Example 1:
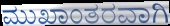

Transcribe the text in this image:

ಮುಖಾಂತರವಾಗಿ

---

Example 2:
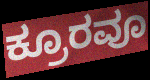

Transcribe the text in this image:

ಕ್ರೂರವೂ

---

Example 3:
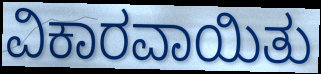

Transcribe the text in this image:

ವಿಕಾರವಾಯಿತು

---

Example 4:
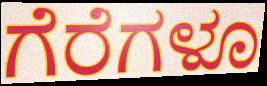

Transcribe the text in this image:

ಗೆರೆಗಳೂ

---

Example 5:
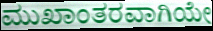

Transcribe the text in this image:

ಮುಖಾಂತರವಾಗಿಯೇ